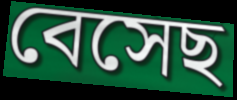
বেসেছ